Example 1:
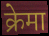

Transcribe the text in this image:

क्रेमा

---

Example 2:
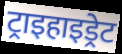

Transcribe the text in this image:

ट्राइहाइड्रेट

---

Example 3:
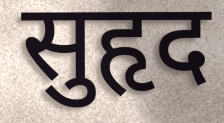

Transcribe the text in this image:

सुहृद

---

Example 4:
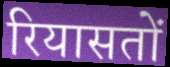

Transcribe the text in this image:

रियासतों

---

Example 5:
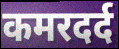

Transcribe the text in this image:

कमरदर्द